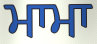
ਮਾਮਾ